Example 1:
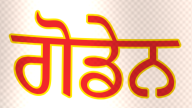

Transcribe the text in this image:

ਗੋਡੇਨ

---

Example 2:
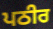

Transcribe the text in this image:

ਪਠੀਰ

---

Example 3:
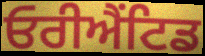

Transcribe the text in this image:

ਓਰੀਐਂਟਿਡ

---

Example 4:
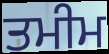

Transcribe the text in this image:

ਤਮੀਮ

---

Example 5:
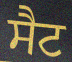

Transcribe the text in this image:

ਸੈਟ